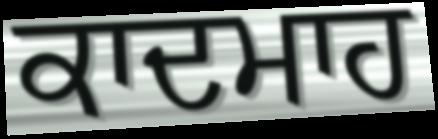
ਕਾਦਮਾਹ